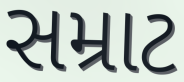
સમ્રાટ